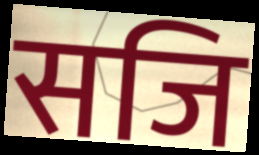
सजि